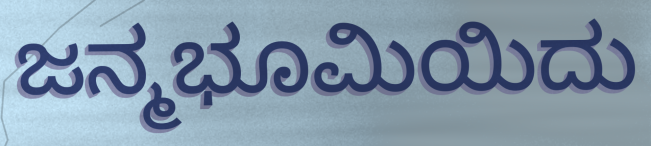
ಜನ್ಮಭೂಮಿಯಿದು